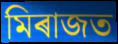
মিৰাজত